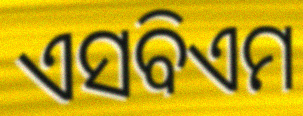
ଏସବିଏମ